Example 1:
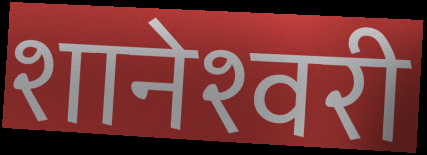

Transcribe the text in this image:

शानेश्वरी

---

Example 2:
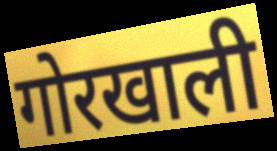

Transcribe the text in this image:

गोरखाली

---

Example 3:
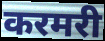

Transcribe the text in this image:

करमरी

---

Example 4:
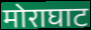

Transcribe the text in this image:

मोराघाट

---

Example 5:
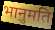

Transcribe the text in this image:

भानुमति